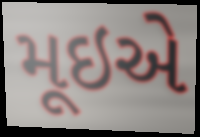
મૂઇએ